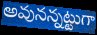
అవునన్నట్టుగా